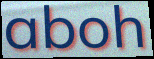
aboh